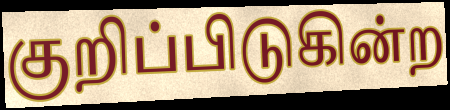
குறிப்பிடுகின்ற